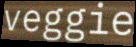
veggie